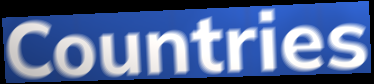
Countries